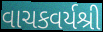
વાચકવર્યશ્રી